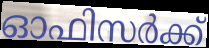
ഓഫിസർക്ക്